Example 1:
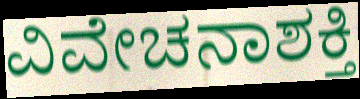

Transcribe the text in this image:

ವಿವೇಚನಾಶಕ್ತಿ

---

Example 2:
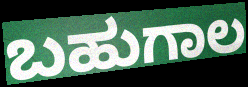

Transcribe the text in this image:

ಬಹುಗಾಲ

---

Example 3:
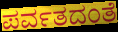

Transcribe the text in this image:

ಪರ್ವತದಂತೆ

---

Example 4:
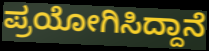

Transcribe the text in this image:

ಪ್ರಯೋಗಿಸಿದ್ದಾನೆ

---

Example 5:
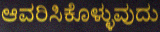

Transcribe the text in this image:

ಆವರಿಸಿಕೊಳ್ಳುವುದು